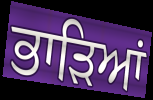
ਭਾੜਿਆਂ